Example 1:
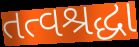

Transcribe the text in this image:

તત્વશ્રદ્ધા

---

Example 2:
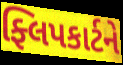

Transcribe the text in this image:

ફ્લિપકાર્ટને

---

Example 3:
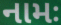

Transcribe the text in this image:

નામઃ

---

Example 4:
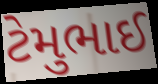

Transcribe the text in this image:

ટેમુભાઈ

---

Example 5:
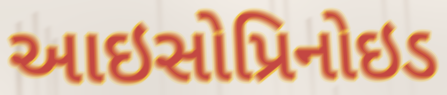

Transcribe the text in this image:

આઇસોપ્રિનોઇડ